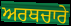
ਅਰਥਚਾਰੇ